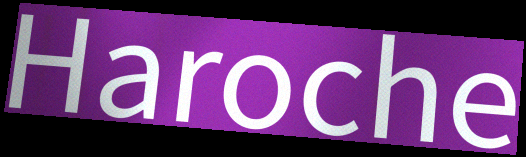
Haroche